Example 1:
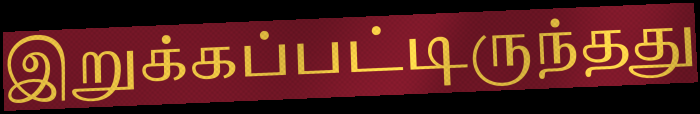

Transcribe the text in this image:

இறுக்கப்பட்டிருந்தது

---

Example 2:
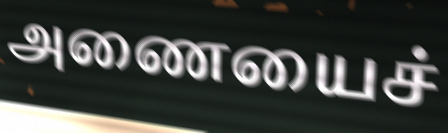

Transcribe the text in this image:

அணையைச்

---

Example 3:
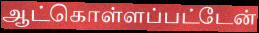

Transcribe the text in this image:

ஆட்கொள்ளப்பட்டேன்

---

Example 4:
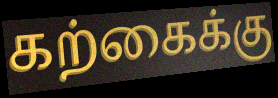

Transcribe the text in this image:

கற்கைக்கு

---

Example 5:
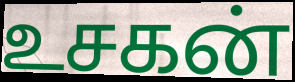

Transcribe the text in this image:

உசகன்